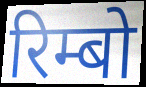
रिम्बो